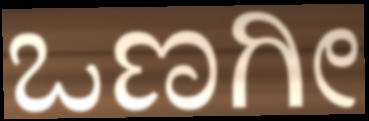
ಒಣಗೀ